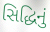
સિદ્ધિનું